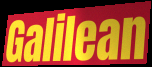
Galilean